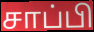
சாப்பி